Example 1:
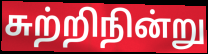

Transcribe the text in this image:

சுற்றிநின்று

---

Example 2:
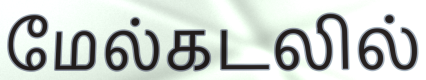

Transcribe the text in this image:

மேல்கடலில்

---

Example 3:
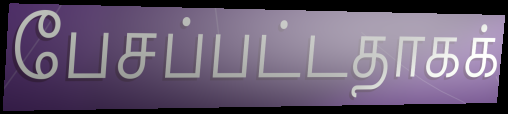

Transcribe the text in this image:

பேசப்பட்டதாகக்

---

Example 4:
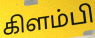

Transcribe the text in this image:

கிளம்பி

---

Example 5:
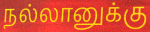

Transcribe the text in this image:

நல்லானுக்கு